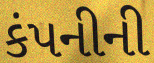
કંપનીની